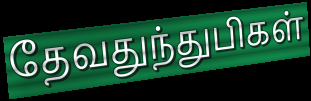
தேவதுந்துபிகள்